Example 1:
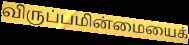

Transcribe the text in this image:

விருப்பமின்மையைக்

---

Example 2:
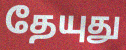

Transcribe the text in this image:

தேயுது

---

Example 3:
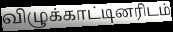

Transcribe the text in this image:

விழுக்காட்டினரிடம்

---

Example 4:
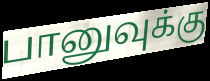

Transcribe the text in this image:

பானுவுக்கு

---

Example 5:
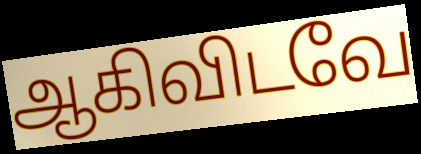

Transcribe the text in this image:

ஆகிவிடவே